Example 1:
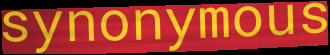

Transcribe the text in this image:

synonymous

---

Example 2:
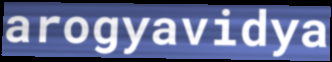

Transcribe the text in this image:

arogyavidya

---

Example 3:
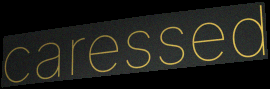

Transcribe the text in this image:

caressed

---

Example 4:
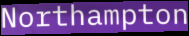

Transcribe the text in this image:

Northampton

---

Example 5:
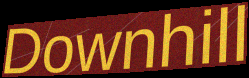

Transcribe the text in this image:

Downhill